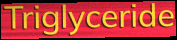
Triglyceride